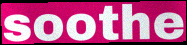
soothe